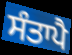
ਸੰਤਾਪੈ